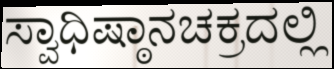
ಸ್ವಾಧಿಷ್ಠಾನಚಕ್ರದಲ್ಲಿ